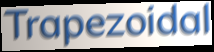
Trapezoidal